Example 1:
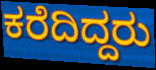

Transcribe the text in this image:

ಕರೆದಿದ್ದರು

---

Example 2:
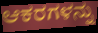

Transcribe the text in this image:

ಆಕರಗಳನ್ನು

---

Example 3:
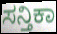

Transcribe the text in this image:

ಸನ್ತಿಕಾ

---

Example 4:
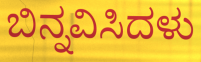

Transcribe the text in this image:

ಬಿನ್ನವಿಸಿದಳು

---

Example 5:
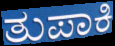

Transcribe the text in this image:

ತುಪಾಕಿ